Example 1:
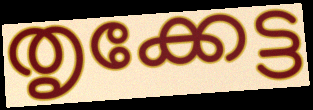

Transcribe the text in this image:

തൃക്കേട്ട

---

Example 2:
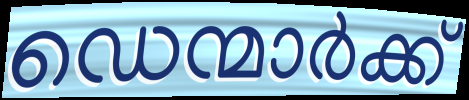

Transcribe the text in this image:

ഡെന്മാർക്ക്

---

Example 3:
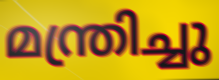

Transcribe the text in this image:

മന്ത്രിച്ചു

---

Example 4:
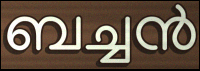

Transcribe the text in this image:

ബച്ചൻ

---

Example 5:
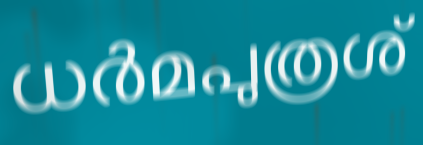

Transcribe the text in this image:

ധർമപുത്രശ്